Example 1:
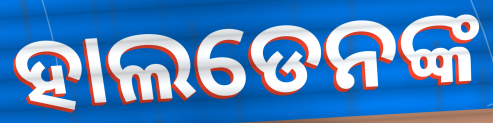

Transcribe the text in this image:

ହାଲଡେନଙ୍କ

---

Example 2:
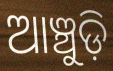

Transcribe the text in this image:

ଆଞ୍ଚୁଡ଼ି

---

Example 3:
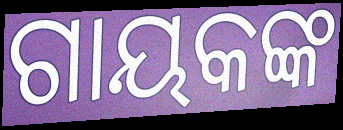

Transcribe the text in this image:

ଗାୟକଙ୍କ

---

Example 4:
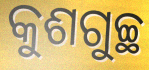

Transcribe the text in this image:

କୁଶଗୁଚ୍ଛ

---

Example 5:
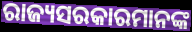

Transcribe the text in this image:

ରାଜ୍ୟସରକାରମାନଙ୍କ